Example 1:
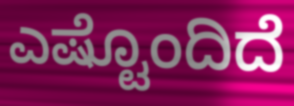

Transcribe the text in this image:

ಎಷ್ಟೊಂದಿದೆ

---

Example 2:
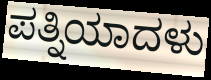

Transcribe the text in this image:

ಪತ್ನಿಯಾದಳು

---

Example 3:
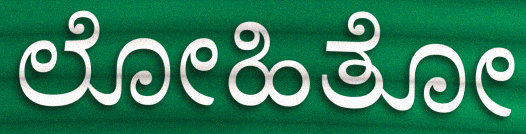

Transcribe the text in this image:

ಲೋಹಿತೋ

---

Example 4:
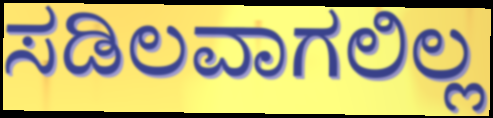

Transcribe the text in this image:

ಸಡಿಲವಾಗಲಿಲ್ಲ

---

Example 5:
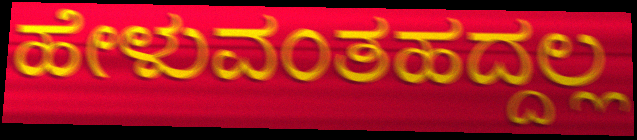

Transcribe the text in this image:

ಹೇಳುವಂತಹದ್ದಲ್ಲ